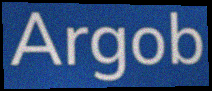
Argob